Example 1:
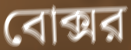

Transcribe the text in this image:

বোক্সর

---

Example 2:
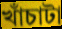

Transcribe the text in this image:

খাঁচাটা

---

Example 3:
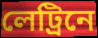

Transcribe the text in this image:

লেট্রিনে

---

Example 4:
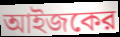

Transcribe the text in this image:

আইজকের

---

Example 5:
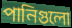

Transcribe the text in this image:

পানিগুলো